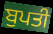
ਬੁਪਤੀ